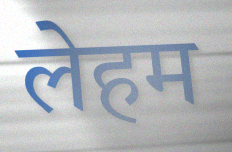
लेहम